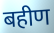
बहीण